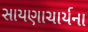
સાયણાચાર્યના